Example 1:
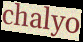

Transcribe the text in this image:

chalyo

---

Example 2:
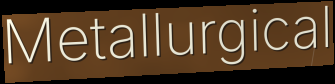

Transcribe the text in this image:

Metallurgical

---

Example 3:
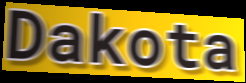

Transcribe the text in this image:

Dakota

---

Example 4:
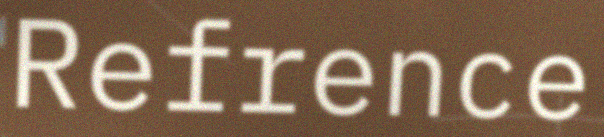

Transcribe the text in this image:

Refrence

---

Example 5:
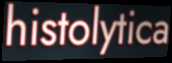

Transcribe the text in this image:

histolytica